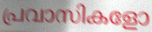
പ്രവാസികളോ